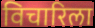
विचारिला